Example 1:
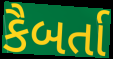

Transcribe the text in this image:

કૈબર્તા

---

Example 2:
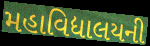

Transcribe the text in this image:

મહાવિદ્યાલયની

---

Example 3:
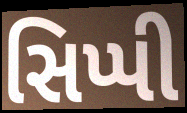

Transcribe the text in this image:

સિપ્પી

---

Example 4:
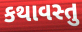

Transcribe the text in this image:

કથાવસ્તુ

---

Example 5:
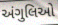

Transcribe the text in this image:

અંગુલિઓ